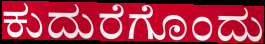
ಕುದುರೆಗೊಂದು